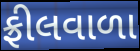
ફ્રીલવાળા